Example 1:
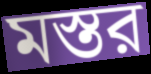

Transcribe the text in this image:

মস্তর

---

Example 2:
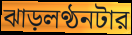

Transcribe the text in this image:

ঝাড়লণ্ঠনটার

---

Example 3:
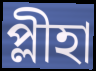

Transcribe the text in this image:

প্লীহা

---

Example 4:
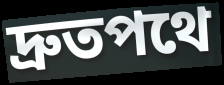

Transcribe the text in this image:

দ্রুতপথে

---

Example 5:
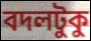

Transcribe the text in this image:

বদলটুকু